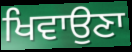
ਖਿਵਾਉਣਾ